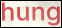
hung